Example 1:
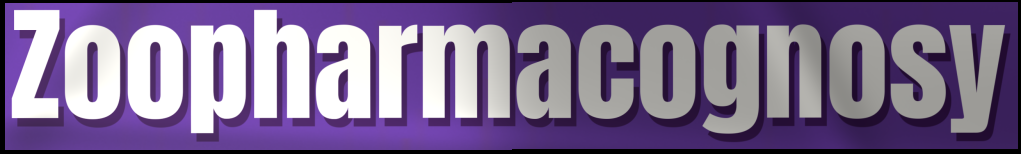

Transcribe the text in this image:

Zoopharmacognosy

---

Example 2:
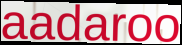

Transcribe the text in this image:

aadaroo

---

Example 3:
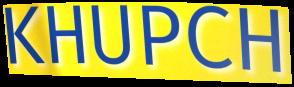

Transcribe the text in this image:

KHUPCH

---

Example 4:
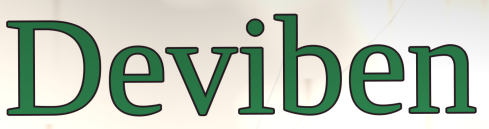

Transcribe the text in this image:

Deviben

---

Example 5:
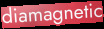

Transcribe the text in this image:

diamagnetic